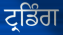
ਟ੍ਰਡਿੰਗ